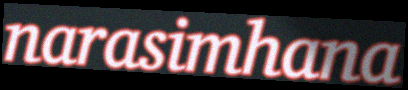
narasimhana